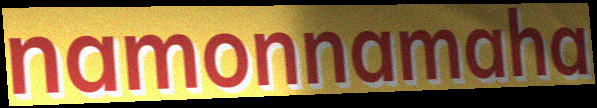
namonnamaha